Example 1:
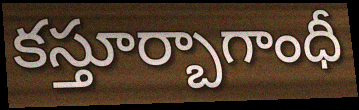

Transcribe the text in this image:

కస్తూర్బాగాంధీ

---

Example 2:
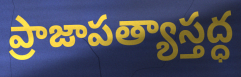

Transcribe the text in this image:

ప్రాజాపత్యాస్తద్ధ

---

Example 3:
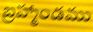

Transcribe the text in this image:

బ్రహ్మాండము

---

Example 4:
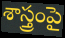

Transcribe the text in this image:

శాస్త్రంపై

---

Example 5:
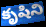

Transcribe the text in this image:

కృషిని